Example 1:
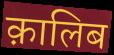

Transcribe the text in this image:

क़ालिब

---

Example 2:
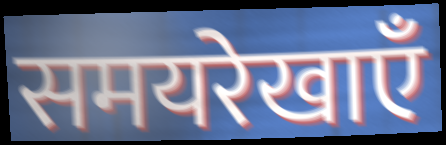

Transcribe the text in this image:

समयरेखाएँ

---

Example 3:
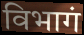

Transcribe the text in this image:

विभागं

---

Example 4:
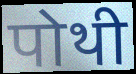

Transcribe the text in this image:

पोथी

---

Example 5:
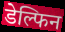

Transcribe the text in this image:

डेल्फिन